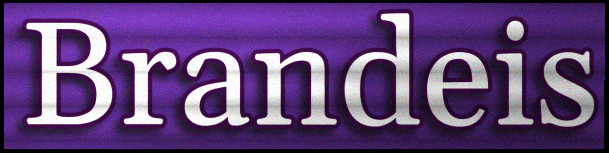
Brandeis